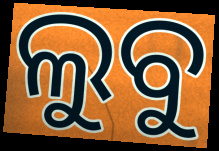
ଲୁବୁ